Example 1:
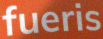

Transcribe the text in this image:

fueris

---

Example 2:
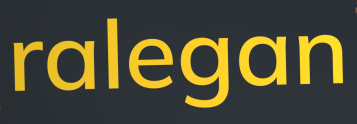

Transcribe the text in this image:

ralegan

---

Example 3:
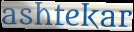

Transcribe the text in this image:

ashtekar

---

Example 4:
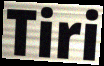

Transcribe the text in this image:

Tiri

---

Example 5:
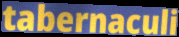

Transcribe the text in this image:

tabernaculi